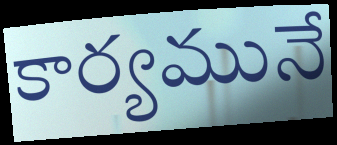
కార్యమునే